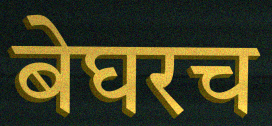
बेघरच